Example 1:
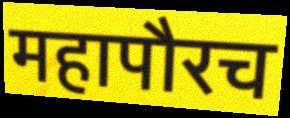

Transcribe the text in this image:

महापौरच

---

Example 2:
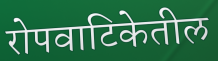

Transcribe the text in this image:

रोपवाटिकेतील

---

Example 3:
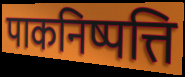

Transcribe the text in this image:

पाकनिष्पत्ति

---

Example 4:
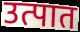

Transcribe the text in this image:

उत्पात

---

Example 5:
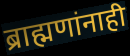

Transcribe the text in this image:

ब्राह्मणांनाही